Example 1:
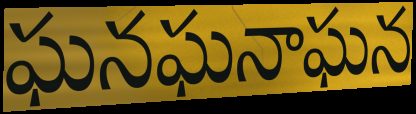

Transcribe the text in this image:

ఘనఘనాఘన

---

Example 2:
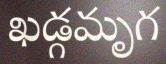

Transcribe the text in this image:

ఖడ్గమృగ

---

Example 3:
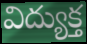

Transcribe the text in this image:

విద్యుక్త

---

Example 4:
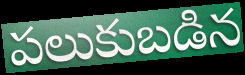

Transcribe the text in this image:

పలుకుబడిన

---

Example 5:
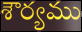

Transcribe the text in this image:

శౌర్యము